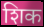
शिक